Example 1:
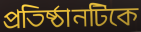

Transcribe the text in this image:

প্রতিষ্ঠানটিকে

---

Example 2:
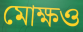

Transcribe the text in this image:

মোক্ষও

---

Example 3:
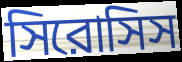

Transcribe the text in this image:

সিরোসিস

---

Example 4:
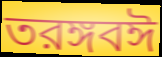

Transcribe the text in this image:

তরঙ্গবঈ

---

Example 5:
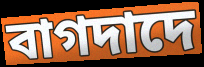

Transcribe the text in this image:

বাগদাদে